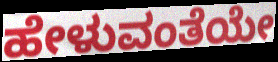
ಹೇಳುವಂತೆಯೇ